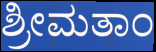
ಶ್ರೀಮತಾಂ